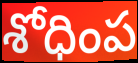
శోధింప